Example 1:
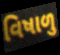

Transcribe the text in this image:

વિષાળુ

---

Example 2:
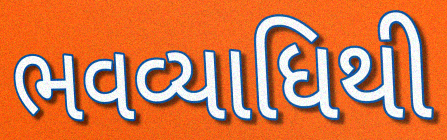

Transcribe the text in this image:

ભવવ્યાધિથી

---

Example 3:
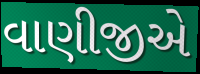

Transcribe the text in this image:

વાણીજીએ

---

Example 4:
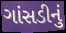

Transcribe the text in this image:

ગાંસડીનું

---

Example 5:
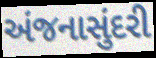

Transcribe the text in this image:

અંજનાસુંદરી